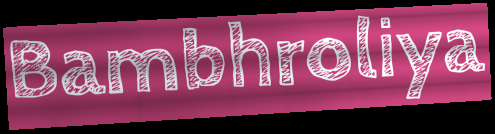
Bambhroliya